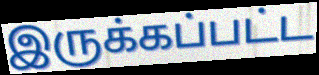
இருக்கப்பட்ட